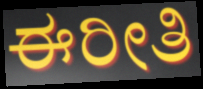
ಈರೀತಿ